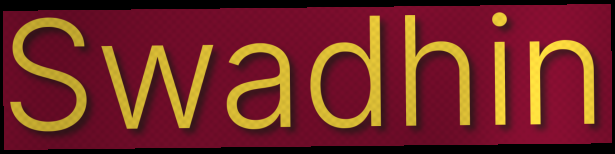
Swadhin